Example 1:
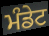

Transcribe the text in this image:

ਮੰਡੇਟ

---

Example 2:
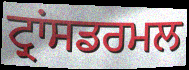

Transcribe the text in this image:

ਟ੍ਰਾਂਸਡਰਮਲ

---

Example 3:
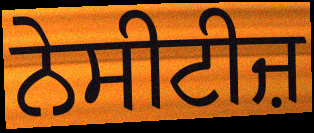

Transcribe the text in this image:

ਨੇਸੀਟੀਜ਼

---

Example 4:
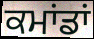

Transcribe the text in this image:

ਕਮਾਂਡਾਂ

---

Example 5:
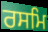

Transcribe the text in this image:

ਰਸਮਿ